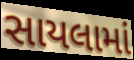
સાયલામાં